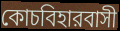
কোচবিহারবাসী